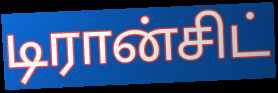
டிரான்சிட்